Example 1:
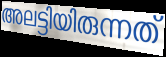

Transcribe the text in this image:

അലട്ടിയിരുന്നത്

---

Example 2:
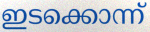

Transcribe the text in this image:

ഇടക്കൊന്ന്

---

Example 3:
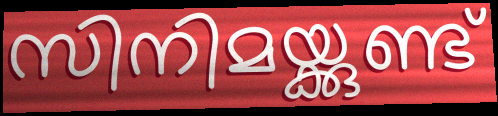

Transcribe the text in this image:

സിനിമയ്ക്കുണ്ട്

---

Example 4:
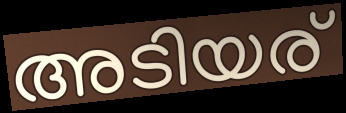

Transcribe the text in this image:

അടിയര്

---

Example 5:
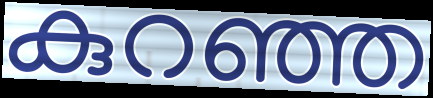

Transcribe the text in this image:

കുറഞ്ഞ